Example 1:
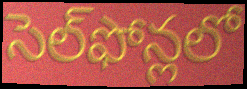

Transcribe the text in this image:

సెల్‌ఫోన్లలో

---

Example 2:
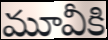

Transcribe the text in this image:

మూవీకి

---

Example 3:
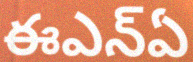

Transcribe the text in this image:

ఈఎన్ఏ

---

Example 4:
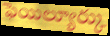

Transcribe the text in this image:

ఫెయిల్యూర్కు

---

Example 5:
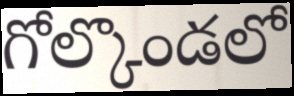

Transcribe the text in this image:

గోల్కొండలో